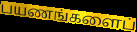
பயணங்களைப்